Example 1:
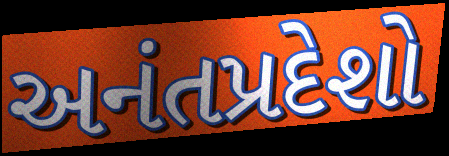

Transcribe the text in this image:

અનંતપ્રદેશો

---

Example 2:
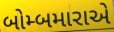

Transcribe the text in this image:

બોમ્બમારાએ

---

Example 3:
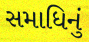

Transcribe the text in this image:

સમાધિનું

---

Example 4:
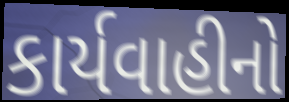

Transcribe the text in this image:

કાર્યવાહીનો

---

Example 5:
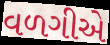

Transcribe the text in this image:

વળગીએ